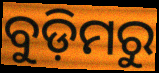
ବୁଡ଼ିମରୁ